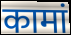
कामां